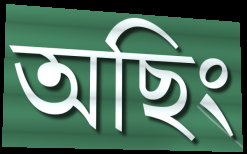
অছিং